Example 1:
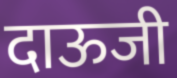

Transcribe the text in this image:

दाऊजी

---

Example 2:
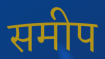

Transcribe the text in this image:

समीप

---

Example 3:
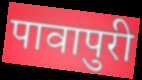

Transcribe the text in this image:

पावापुरी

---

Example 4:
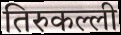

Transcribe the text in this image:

तिरुकल्ली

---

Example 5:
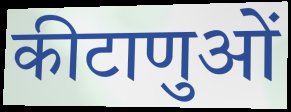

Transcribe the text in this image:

कीटाणुओं